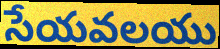
సేయవలయు